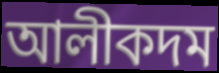
আলীকদম